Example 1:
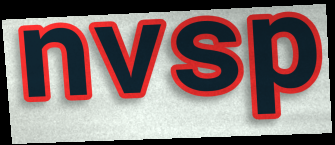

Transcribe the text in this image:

nvsp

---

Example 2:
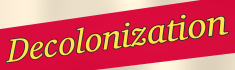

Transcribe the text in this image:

Decolonization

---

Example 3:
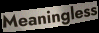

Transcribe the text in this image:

Meaningless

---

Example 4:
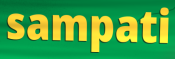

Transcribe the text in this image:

sampati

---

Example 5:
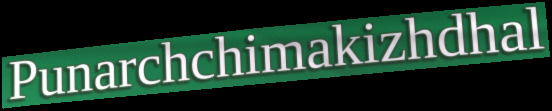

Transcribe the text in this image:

Punarchchimakizhdhal